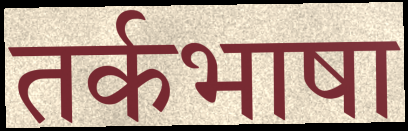
तर्कभाषा